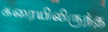
கரையிலிருந்த